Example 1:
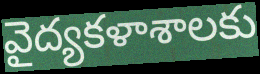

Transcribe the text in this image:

వైద్యకళాశాలకు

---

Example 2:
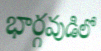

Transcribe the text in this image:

భార్గవుడిలో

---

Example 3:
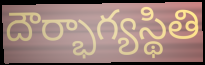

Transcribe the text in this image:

దౌర్భాగ్యస్థితి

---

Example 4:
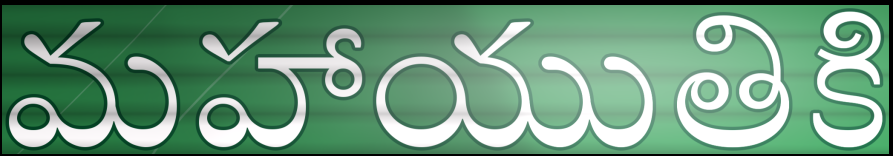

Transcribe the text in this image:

మహాయుతికి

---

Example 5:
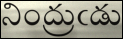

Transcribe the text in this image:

నింద్రుఁడు